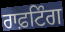
ਰਾਫ਼ਟਿੰਗ